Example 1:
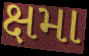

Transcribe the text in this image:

ક્ષમા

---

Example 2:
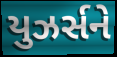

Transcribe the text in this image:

યુઝર્સને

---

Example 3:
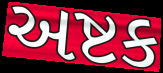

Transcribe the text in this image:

અષ્ટક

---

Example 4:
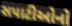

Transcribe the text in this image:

સપાટીઓનો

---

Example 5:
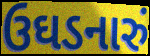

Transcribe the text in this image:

ઉઘડનારું